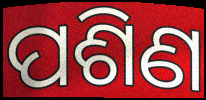
ପଶିଣ